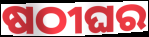
ଷଠୀଘର